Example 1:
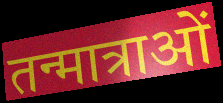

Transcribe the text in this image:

तन्मात्राओं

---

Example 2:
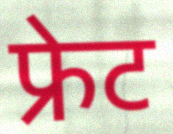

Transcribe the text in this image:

फ्रेट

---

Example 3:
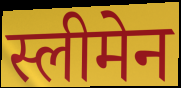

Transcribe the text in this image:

स्लीमेन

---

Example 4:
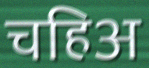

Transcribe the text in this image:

चहिअ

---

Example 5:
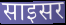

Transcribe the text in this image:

साइसर